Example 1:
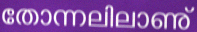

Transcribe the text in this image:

തോന്നലിലാണു്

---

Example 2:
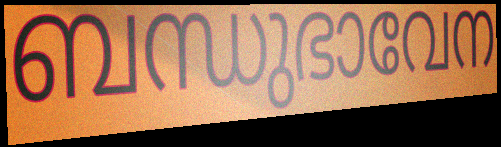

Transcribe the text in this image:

ബന്ധുഭാവേന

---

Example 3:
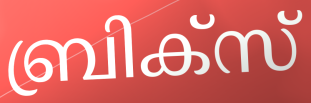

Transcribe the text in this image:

ബ്രിക്സ്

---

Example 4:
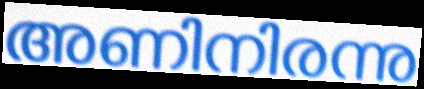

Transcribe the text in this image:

അണിനിരന്നു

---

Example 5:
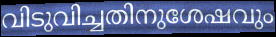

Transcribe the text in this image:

വിടുവിച്ചതിനുശേഷവും